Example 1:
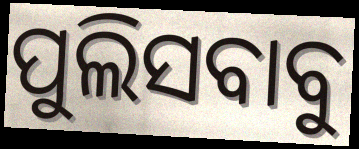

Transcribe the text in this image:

ପୁଲିସବାବୁ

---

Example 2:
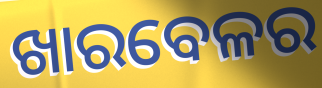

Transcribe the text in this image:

ଖାରବେଳର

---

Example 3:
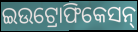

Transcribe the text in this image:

ଇଉଟ୍ରୋଫିକେସନ୍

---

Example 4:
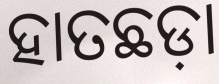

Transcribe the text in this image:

ହାତଛଡ଼ା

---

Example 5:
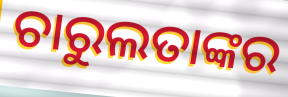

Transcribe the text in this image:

ଚାରୁଲତାଙ୍କର